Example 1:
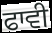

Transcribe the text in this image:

ਫਾਵੀ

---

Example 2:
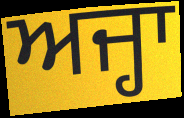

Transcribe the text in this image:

ਅਜ੍ਹਾ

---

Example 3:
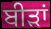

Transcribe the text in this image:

ਬੀੜਾਂ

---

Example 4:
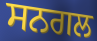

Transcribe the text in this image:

ਸਨਗਲ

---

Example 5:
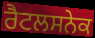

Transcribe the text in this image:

ਰੈਟਲਸਨੇਕ